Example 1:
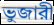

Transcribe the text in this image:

ভুজারী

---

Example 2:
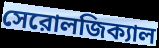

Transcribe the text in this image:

সেরোলজিক্যাল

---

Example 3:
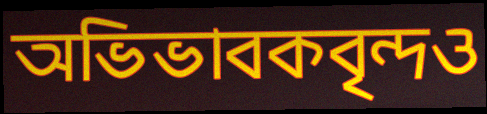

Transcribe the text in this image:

অভিভাবকবৃন্দও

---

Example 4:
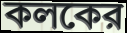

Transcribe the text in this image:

কলকের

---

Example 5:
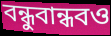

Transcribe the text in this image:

বন্ধুবান্ধবও